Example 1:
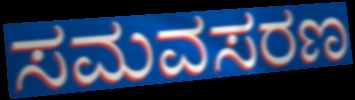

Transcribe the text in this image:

ಸಮವಸರಣ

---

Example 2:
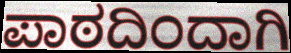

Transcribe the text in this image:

ಪಾಠದಿಂದಾಗಿ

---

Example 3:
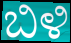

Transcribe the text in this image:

ಬಿಳಿ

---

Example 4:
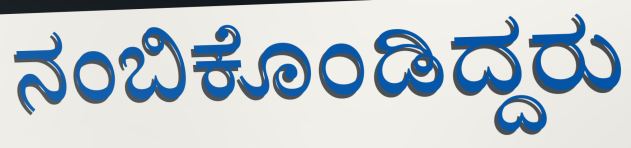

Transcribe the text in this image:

ನಂಬಿಕೊಂಡಿದ್ದರು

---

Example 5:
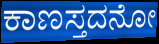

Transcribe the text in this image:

ಕಾಣಸ್ತದನೋ